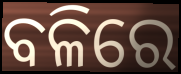
ବଳିରେ